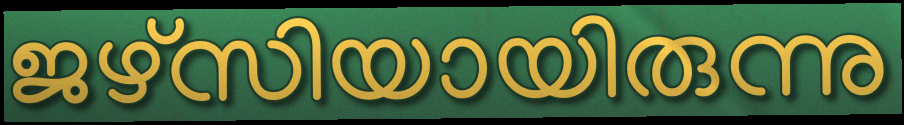
ജഴ്സിയായിരുന്നു